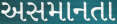
અસમાનતા